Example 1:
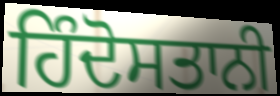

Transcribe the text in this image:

ਹਿੰਦੋਸਤਾਨੀ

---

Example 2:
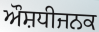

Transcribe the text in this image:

ਔਸ਼ਧੀਜਨਕ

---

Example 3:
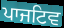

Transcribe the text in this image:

ਪਾਜਟਿਵ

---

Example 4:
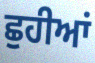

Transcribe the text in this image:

ਛੁਹੀਆਂ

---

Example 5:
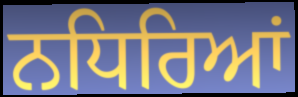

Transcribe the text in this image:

ਨਧਿਰਿਆਂ